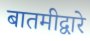
बातमीद्वारे